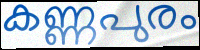
കണ്ണപുരം